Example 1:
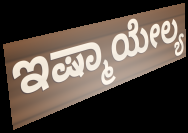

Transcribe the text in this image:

ಇಷ್ಮಾಯೇಲ್ಯ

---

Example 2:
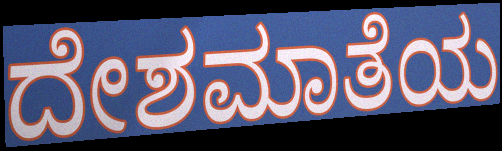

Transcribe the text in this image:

ದೇಶಮಾತೆಯ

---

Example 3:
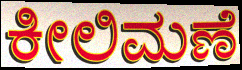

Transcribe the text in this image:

ಕೀಲಿಮಣೆ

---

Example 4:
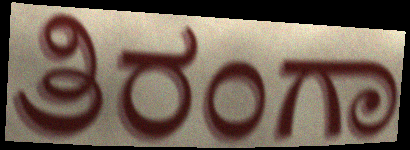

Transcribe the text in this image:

ತಿರಂಗಾ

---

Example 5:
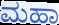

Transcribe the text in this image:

ಮಹಾ